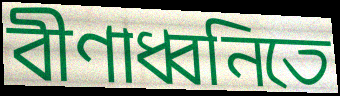
বীণাধ্বনিতে